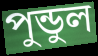
পুন্ডুল